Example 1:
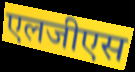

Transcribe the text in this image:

एलजीएस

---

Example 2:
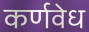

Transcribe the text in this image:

कर्णवेध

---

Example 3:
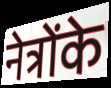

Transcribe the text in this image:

नेत्रोंके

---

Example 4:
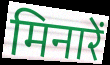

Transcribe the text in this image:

मिनारें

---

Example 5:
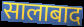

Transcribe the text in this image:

सालाबाद